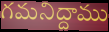
గమనిద్దాము